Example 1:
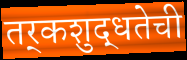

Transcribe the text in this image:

तर्कशुद्धतेची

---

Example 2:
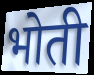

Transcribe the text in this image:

भोती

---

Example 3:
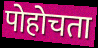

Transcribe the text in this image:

पोहोचता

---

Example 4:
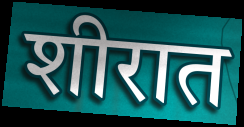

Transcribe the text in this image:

शीरात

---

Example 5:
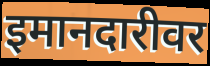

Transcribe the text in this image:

इमानदारीवर